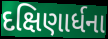
દક્ષિણાર્ધના